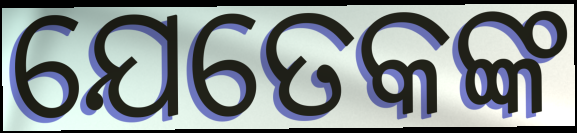
ଯେତେକଙ୍କ